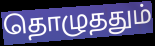
தொழுததும்